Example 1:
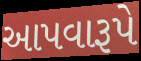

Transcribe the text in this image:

આપવારૂપે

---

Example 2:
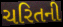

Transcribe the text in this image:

ચરિતની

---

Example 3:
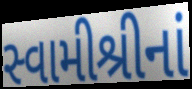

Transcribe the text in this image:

સ્વામીશ્રીનાં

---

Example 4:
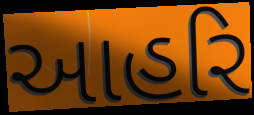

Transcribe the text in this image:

આહરિ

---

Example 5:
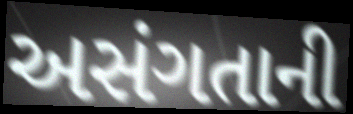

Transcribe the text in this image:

અસંગતાની